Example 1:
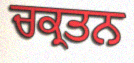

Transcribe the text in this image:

ਚਕ੍ਰਤਨ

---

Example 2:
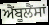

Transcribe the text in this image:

ਐੰਬੂਲੈਂਸਾਂ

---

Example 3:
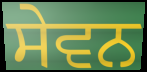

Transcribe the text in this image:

ਸੇਵਨ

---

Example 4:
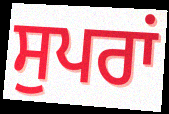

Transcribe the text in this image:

ਸੁਪਰਾਂ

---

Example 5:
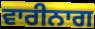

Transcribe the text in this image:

ਵਾਰੀਨਾਗ